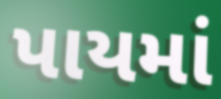
પાયમાં